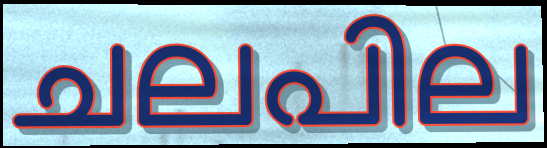
ചലപില